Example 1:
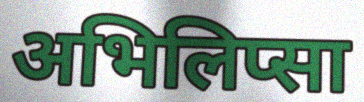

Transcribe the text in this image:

अभिलिप्सा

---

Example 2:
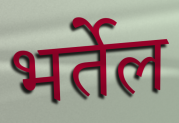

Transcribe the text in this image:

भर्तेल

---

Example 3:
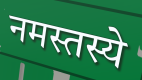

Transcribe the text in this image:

नमस्तस्ये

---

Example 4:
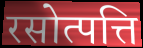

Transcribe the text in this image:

रसोत्पत्ति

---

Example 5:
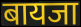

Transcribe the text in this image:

बायजा